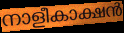
നാളീകാക്ഷൻ